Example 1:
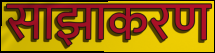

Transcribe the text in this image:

साझाकरण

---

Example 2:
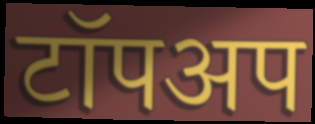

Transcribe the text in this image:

टॉपअप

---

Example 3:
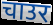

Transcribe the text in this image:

चाउर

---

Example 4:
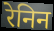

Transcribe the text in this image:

रेनिन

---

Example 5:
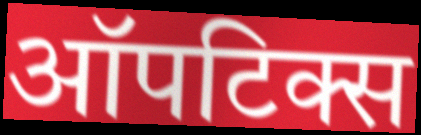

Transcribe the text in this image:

ऑपटिक्स